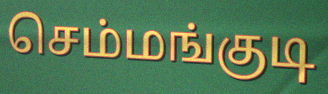
செம்மங்குடி